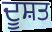
ਦੂਸ਼ਤ